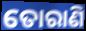
ତୋରାଣି